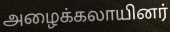
அழைக்கலாயினர்